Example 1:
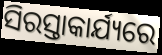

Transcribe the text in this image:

ସିରସ୍ତାକାର୍ଯ୍ୟରେ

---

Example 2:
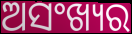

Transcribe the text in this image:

ଅସଂଖ୍ୟର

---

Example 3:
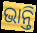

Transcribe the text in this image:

ଭାନ୍ତି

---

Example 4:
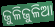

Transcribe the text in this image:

ଜୁଳିଜୁଳିଆ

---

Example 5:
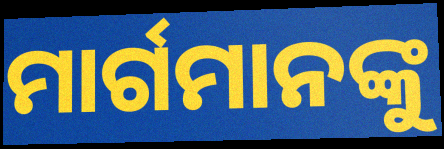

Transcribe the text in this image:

ମାର୍ଗମାନଙ୍କୁ